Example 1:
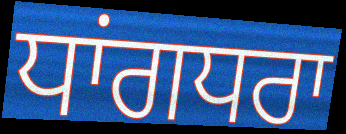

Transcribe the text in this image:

ਧਾਂਗਧਰਾ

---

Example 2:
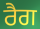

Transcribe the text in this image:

ਰੈਗ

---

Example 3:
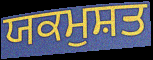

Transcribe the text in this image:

ਯਕਮੁਸ਼ਤ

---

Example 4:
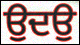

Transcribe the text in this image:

ਉਦਉ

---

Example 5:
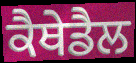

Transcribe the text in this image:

ਕੈਥੇਡੈਲ